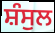
ਸ਼ੰਸੁਲ